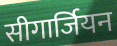
सीगार्जियन